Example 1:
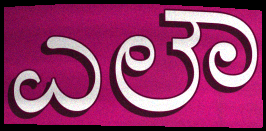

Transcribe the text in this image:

ಎಲೌ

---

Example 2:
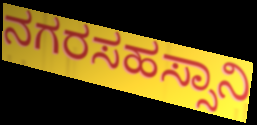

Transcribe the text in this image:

ನಗರಸಹಸ್ಸಾನಿ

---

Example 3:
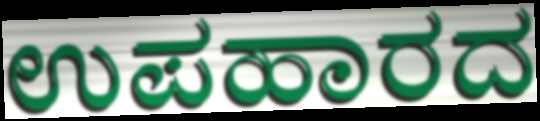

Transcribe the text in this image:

ಉಪಹಾರದ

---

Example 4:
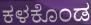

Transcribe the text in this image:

ಕಳಕೊಂಡ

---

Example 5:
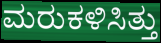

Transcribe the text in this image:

ಮರುಕಳಿಸಿತ್ತು